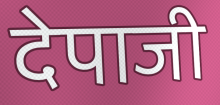
देपाजी